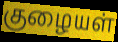
குழையள்